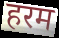
हरम